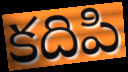
కదిపి